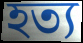
হত্য